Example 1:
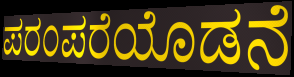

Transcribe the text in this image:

ಪರಂಪರೆಯೊಡನೆ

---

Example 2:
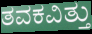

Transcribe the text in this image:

ತವಕವಿತ್ತು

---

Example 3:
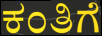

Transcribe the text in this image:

ಕಂತಿಗೆ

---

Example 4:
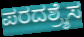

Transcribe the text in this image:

ಪರದಶ್ರ್ಶೆಸ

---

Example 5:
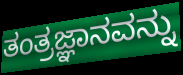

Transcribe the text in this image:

ತಂತ್ರಜ್ಞಾನವನ್ನು